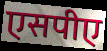
एसपीए